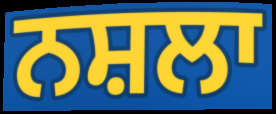
ਨਸ਼ਲਾ